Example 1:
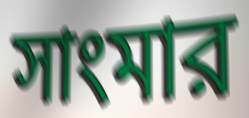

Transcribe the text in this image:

সাংমার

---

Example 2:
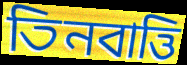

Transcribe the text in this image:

তিনবাত্তি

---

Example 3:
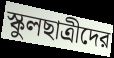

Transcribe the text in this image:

স্কুলছাত্রীদের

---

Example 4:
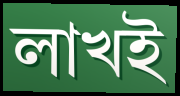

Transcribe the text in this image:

লাখই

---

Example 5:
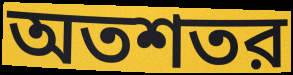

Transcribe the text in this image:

অতশতর